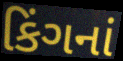
કિંગનાં